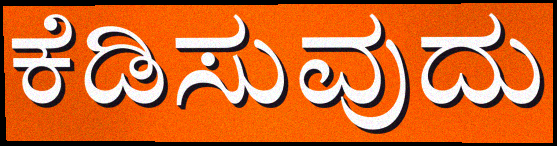
ಕೆಡಿಸುವುದು